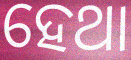
ହେଥା